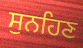
ਸੁਨਹਿਣ